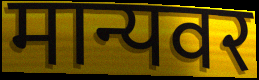
मान्यवर